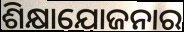
ଶିକ୍ଷାଯୋଜନାର